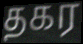
தகர